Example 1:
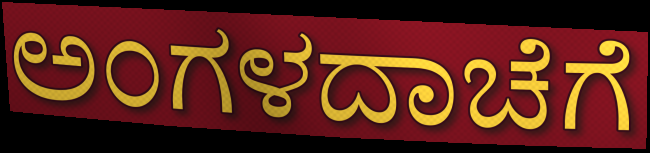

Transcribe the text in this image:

ಅಂಗಳದಾಚೆಗೆ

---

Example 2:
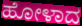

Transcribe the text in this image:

ಹೋಳಾದ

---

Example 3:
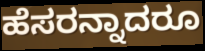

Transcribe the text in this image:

ಹೆಸರನ್ನಾದರೂ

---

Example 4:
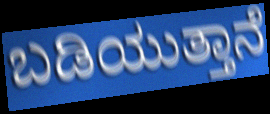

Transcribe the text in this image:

ಬಡಿಯುತ್ತಾನೆ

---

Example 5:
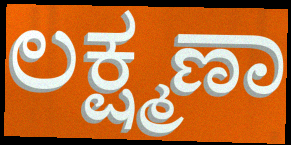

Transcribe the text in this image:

ಲಕ್ಷ್ಮಣಾ